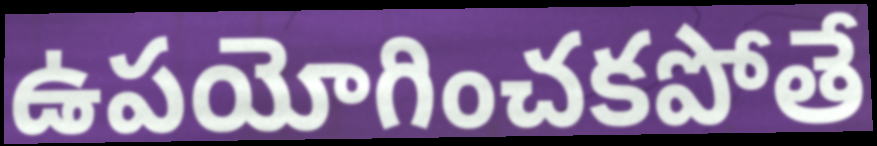
ఉపయోగించకపోతే